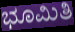
ಭೂಮಿತಿ